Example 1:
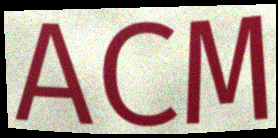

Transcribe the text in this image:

ACM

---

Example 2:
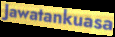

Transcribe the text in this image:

Jawatankuasa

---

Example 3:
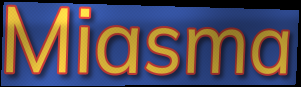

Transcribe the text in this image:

Miasma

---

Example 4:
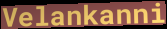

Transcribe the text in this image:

Velankanni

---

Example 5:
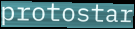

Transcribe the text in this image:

protostar